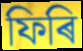
ফিৰি